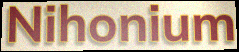
Nihonium